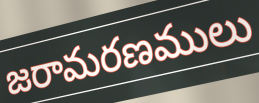
జరామరణములు